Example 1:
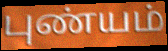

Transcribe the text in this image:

புண்யம்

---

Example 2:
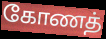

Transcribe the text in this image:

கோணத்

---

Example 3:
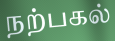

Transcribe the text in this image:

நற்பகல்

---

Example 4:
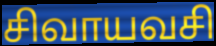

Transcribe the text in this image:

சிவாயவசி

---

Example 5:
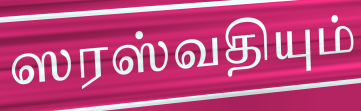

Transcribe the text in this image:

ஸரஸ்வதியும்